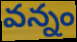
వన్నం